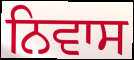
ਨਿਵਾਸ